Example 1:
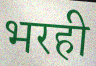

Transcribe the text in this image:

भरही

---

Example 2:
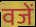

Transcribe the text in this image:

वजें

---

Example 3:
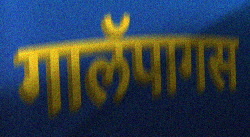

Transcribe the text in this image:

गालॅपागस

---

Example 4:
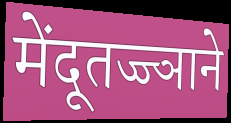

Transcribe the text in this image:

मेंदूतज्ज्ञाने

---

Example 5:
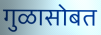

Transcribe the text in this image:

गुळासोबत